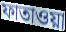
ফাতাওয়া